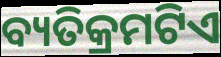
ବ୍ୟତିକ୍ରମଟିଏ